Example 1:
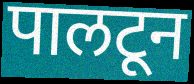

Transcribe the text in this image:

पालटून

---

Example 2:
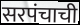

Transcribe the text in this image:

सरपंचाची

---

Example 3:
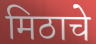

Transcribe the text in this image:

मिठाचे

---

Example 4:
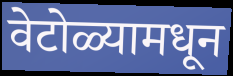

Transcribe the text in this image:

वेटोळ्यामधून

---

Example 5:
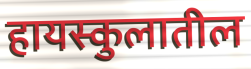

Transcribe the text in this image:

हायस्कुलातील